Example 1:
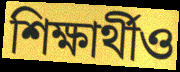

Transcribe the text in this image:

শিক্ষার্থীও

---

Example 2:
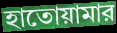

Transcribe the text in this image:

হাতোয়ামার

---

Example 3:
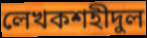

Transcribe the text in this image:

লেখকশহীদুল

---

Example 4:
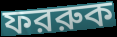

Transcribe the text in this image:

ফররুক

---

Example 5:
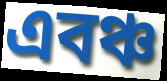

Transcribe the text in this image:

এবঞ্চ